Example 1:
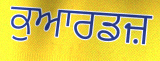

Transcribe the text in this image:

ਕੁਆਰਡਜ਼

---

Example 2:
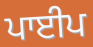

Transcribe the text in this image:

ਪਾਈਪ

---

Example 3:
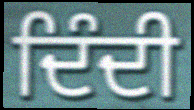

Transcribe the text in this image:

ਦਿੰਦੀ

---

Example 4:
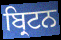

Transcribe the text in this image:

ਬ੍ਰਿਟਨ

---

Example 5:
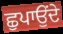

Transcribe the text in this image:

ਛੁਪਾਉਂਦੇ